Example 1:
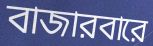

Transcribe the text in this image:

বাজারবারে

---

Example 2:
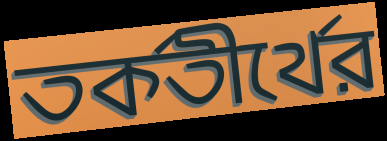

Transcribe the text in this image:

তর্কতীর্থের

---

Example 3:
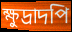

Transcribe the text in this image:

ক্ষুদ্রাদপি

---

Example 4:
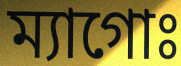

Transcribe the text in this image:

ম্যাগোঃ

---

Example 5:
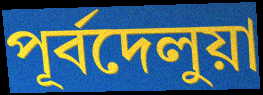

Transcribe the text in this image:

পূর্বদেলুয়া